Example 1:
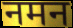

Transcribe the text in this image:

नमन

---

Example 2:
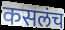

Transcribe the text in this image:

कसलंच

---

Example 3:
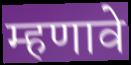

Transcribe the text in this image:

म्हणावे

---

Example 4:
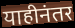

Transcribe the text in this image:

याहीनंतर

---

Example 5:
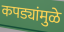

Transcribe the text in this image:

कपड्यांमुळे